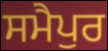
ਸਮੈਪੁਰ